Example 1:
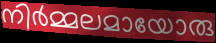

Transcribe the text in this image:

നിർമ്മലമായോരു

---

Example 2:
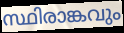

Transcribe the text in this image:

സ്ഥിരാങ്കവും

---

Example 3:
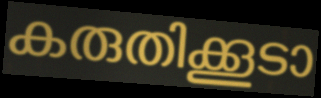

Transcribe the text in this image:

കരുതിക്കൂടാ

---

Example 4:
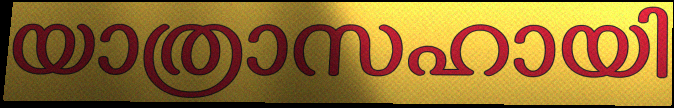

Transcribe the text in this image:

യാത്രാസഹായി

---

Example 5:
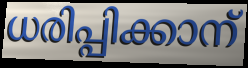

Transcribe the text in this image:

ധരിപ്പിക്കാന്